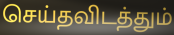
செய்தவிடத்தும்